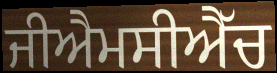
ਜੀਐਮਸੀਐੱਚ